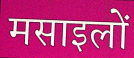
मसाइलों